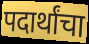
पदार्थांचा